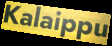
Kalaippu